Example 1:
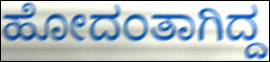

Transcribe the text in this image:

ಹೋದಂತಾಗಿದ್ದ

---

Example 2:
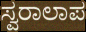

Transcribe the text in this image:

ಸ್ವರಾಲಾಪ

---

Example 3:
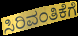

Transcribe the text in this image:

ಸಿರಿವಂತಿಕೆಗೆ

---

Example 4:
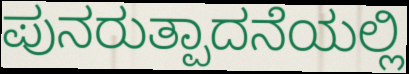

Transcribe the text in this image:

ಪುನರುತ್ಪಾದನೆಯಲ್ಲಿ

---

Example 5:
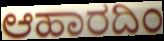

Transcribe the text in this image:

ಆಹಾರದಿಂ